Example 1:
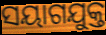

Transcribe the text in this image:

ସୟାଗଯୁକ୍ତ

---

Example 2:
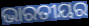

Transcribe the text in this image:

ଭାରତୀୟର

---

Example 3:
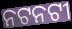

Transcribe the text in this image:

ନଟନଟୀ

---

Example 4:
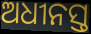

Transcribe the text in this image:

ଅଧୀନସ୍ତ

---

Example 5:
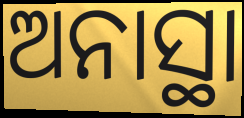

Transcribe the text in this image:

ଅନାସ୍ଥା